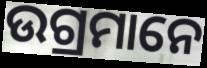
ଉଗ୍ରମାନେ